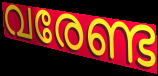
വരേണ്ട